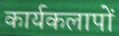
कार्यकलापों